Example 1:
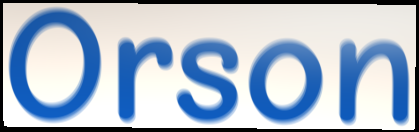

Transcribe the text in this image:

Orson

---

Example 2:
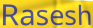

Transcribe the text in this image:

Rasesh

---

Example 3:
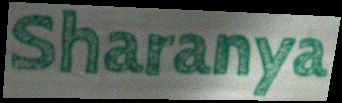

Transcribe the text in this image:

Sharanya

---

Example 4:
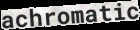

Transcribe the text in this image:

achromatic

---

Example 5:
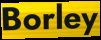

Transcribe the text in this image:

Borley